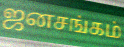
ஜனசங்கம்